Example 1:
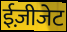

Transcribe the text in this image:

ईज़ीजेट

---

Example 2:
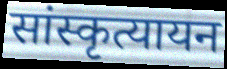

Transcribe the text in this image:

सांस्कृत्यायन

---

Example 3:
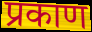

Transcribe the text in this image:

प्रकाण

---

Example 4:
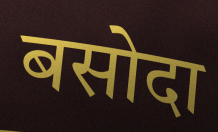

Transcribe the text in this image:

बसोदा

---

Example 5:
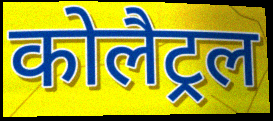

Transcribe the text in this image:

कोलैट्रल